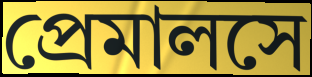
প্রেমালসে